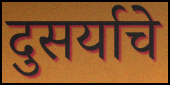
दुसर्याचे